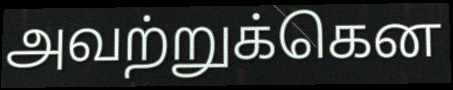
அவற்றுக்கென